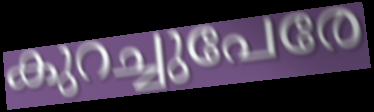
കുറച്ചുപേരേ